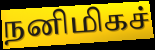
நனிமிகச்